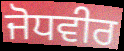
ਜੋਧਵੀਰ